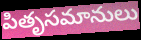
పితృసమానులు